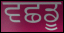
ਵਛਡੂ